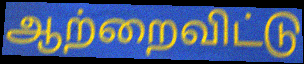
ஆற்றைவிட்டு